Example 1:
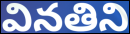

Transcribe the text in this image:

వినతిని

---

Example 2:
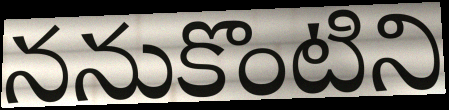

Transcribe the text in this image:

ననుకొంటిని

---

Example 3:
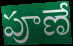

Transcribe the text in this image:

పూణే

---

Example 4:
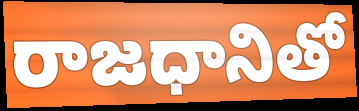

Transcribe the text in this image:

రాజధానితో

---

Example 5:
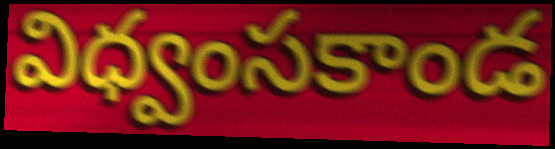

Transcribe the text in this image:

విధ్వంసకాండ